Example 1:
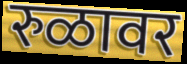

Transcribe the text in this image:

रुळावर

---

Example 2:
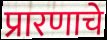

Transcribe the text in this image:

प्रारणाचे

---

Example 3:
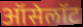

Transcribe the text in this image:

ऑसेलॉट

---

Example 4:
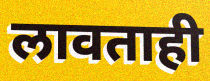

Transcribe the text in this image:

लावताही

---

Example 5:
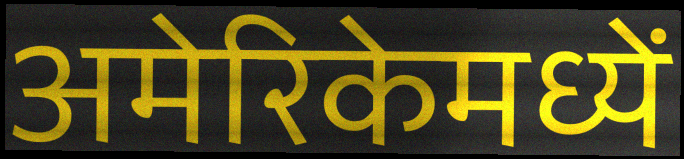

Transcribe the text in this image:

अमेरिकेमध्यें